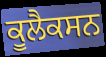
ਕੂਲੈਕਸਨ